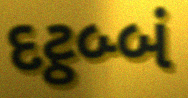
દટ્ઠબ્બં